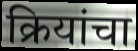
क्रियांचा